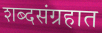
शब्दसंग्रहात